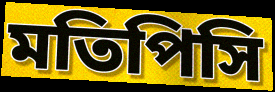
মতিপিসি